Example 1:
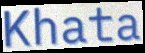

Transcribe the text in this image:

Khata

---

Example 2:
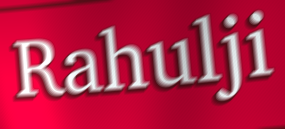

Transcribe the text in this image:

Rahulji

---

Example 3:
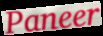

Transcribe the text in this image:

Paneer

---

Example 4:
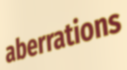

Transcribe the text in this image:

aberrations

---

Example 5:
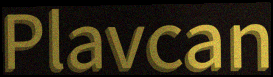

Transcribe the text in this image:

Plavcan